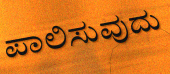
ಪಾಲಿಸುವುದು